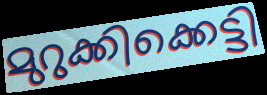
മുറുക്കിക്കെട്ടി